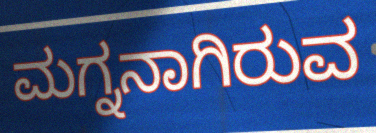
ಮಗ್ನನಾಗಿರುವ